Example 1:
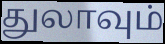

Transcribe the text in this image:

துலாவும்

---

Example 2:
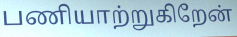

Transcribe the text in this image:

பணியாற்றுகிறேன்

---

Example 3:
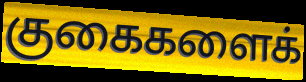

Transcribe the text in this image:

குகைகளைக்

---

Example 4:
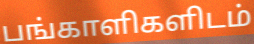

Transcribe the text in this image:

பங்காளிகளிடம்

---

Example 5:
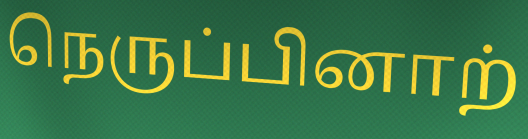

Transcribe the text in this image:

நெருப்பினாற்